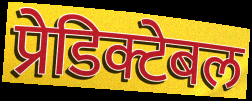
प्रेडिक्टेबल